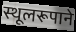
स्थूलरूपाने